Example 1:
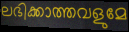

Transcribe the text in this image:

ലഭിക്കാത്തവളുമേ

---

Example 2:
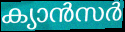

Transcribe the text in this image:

ക്യാൻസർ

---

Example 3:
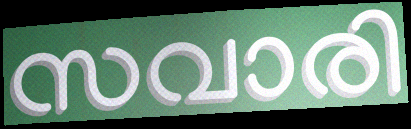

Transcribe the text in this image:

സവാരി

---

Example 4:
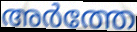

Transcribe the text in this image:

അർത്തേ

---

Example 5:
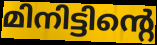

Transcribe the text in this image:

മിനിട്ടിന്റെ